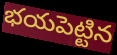
భయపెట్టిన